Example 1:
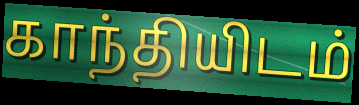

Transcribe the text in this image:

காந்தியிடம்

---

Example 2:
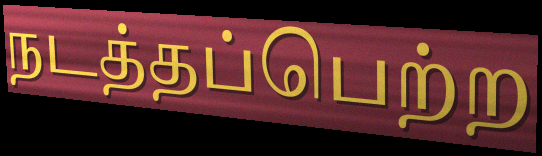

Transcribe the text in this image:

நடத்தப்பெற்ற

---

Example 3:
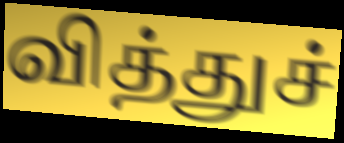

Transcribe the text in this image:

வித்துச்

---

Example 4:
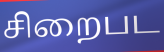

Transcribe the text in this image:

சிறைபட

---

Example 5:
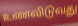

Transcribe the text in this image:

உணவிடுவது